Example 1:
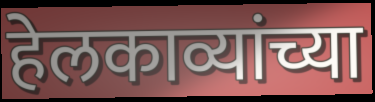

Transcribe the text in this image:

हेलकाव्यांच्या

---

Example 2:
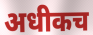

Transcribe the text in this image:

अधीकच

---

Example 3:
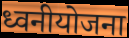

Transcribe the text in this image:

ध्वनीयोजना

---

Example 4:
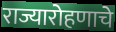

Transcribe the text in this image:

राज्यारोहणाचे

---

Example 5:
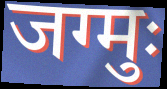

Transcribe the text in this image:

जग्मुः